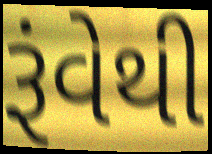
રૂંવેથી